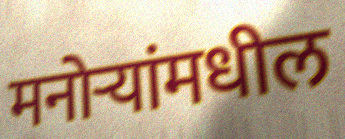
मनोऱ्यांमधील